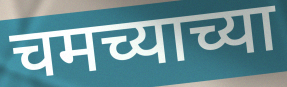
चमच्याच्या